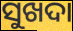
ସୁଖଦା